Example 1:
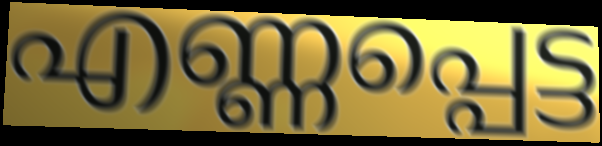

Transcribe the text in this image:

എണ്ണപ്പെട്ട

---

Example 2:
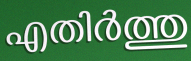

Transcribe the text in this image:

എതിർത്തു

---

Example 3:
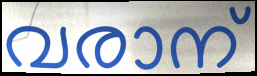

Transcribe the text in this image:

വരാന്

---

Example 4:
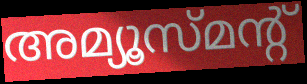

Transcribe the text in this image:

അമ്യൂസ്മന്റ്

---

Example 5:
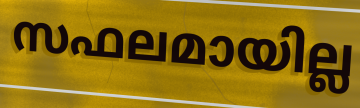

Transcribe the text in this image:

സഫലമായില്ല